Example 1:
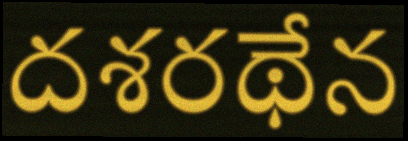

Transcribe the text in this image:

దశరథేన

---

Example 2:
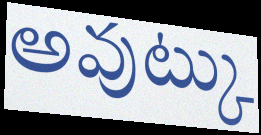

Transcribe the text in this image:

అవుట్కు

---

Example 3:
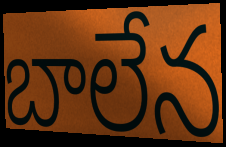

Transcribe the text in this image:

బాలేన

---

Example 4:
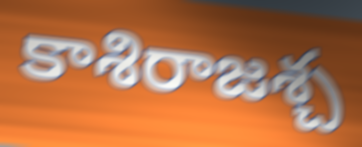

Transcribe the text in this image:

కాశిరాజశ్చ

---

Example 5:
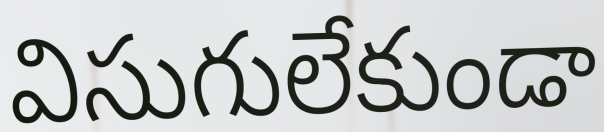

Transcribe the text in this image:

విసుగులేకుండా